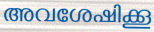
അവശേഷിക്കൂ